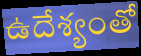
ఉదేశ్యంతో